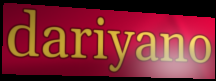
dariyano